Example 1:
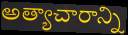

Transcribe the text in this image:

అత్యాచారాన్ని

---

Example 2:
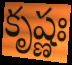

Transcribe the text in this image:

కృష్ణః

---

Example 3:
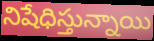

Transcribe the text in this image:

నిషేధిస్తున్నాయి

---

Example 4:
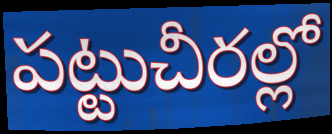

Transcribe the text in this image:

పట్టుచీరల్లో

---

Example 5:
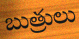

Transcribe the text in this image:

బుత్రులు